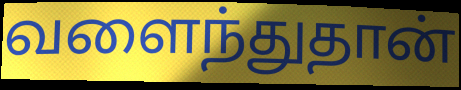
வளைந்துதான்